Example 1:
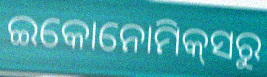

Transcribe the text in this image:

ଇକୋନୋମିକ୍‌ସରୁ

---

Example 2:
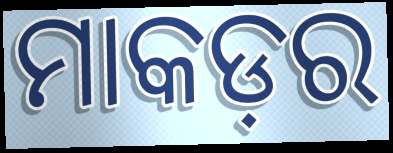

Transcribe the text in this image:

ମାକଡ଼ର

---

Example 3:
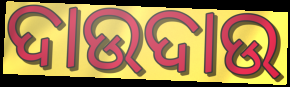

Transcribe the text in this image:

ଦାଉଦାଉ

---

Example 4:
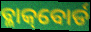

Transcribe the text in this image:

ବ୍ଳାକ୍‌ବୋର୍ଡ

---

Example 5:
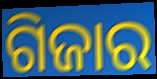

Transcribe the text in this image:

ଗିଜାର